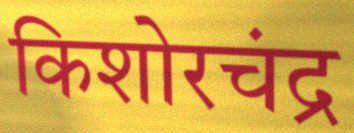
किशोरचंद्र